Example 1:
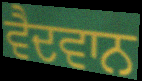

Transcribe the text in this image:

ਵੈਦਵਾਨ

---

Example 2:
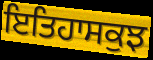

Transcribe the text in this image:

ਇਤਿਹਾਸਕੁਝ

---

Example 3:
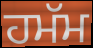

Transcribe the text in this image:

ਹਮੱਮ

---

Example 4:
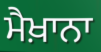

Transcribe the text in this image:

ਮੈਖ਼ਾਨਾ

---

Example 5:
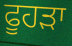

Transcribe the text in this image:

ਫੂਹੜਾ